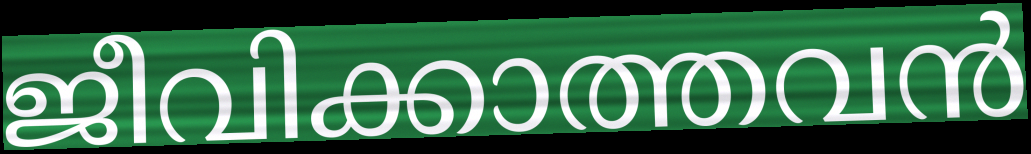
ജീവിക്കാത്തവൻ